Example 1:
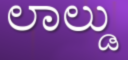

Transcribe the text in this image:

ಲಾಲ್ಡು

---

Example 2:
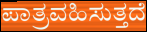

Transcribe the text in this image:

ಪಾತ್ರವಹಿಸುತ್ತದೆ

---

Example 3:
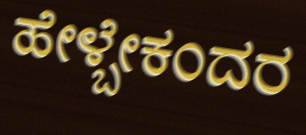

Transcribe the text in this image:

ಹೇಳ್ಬೇಕಂದರ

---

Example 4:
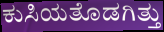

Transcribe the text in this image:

ಕುಸಿಯತೊಡಗಿತ್ತು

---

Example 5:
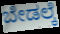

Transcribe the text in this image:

ಬೇಡಲ್ಕೆ